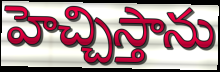
హెచ్చిస్తాను